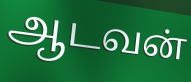
ஆடவன்